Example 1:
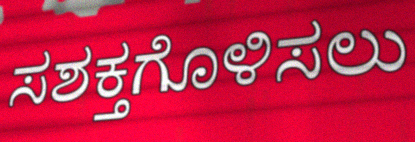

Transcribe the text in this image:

ಸಶಕ್ತಗೊಳಿಸಲು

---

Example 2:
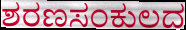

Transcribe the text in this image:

ಶರಣಸಂಕುಲದ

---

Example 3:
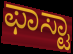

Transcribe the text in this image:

ಫಾಸ್ಟಾ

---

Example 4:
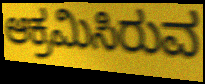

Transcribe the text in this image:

ಆಕ್ರಮಿಸಿರುವ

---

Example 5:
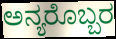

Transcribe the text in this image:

ಅನ್ಯರೊಬ್ಬರ